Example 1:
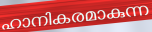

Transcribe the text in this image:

ഹാനികരമാകുന്ന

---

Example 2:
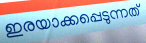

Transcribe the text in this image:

ഇരയാക്കപ്പെടുന്നത്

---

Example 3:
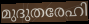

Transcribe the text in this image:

മുദുതരേഹി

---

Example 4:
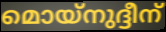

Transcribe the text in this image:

മൊയ്നുദ്ദീന്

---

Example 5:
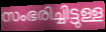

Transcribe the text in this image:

സംഭരിച്ചിട്ടുള്ള